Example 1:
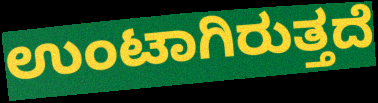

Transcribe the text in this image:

ಉಂಟಾಗಿರುತ್ತದೆ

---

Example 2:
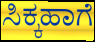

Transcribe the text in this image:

ಸಿಕ್ಕಹಾಗೆ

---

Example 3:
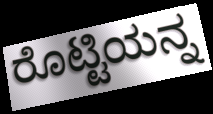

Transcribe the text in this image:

ರೊಟ್ಟಿಯನ್ನ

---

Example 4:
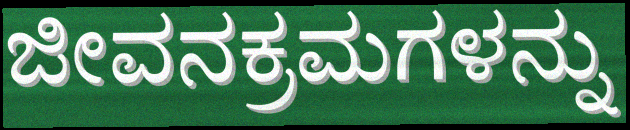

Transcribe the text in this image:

ಜೀವನಕ್ರಮಗಳನ್ನು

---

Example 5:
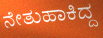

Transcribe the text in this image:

ನೇತುಹಾಕಿದ್ದ